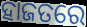
ହାଜତରେ